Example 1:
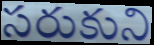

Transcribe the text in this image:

సరుకుని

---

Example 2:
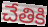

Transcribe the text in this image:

చేతికి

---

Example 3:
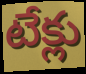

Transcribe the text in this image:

టేక్లు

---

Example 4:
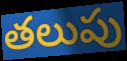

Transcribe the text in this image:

తలుపు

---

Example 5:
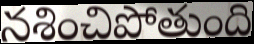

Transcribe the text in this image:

నశించిపోతుంది